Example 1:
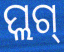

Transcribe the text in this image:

ପ୍ଲଗ୍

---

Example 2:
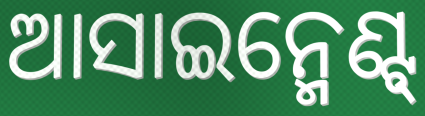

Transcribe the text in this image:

ଆସାଇନ୍ମେଣ୍ଟ୍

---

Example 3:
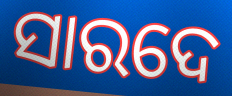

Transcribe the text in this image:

ସାରଦେ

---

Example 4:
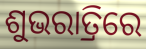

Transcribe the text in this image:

ଶୁଭରାତ୍ରିରେ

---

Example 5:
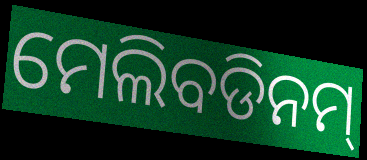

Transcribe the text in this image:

ମେଲିବଡିନମ୍